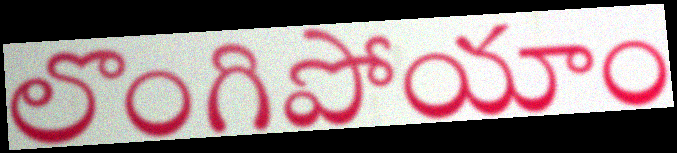
లొంగిపోయాం